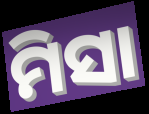
ମିସା